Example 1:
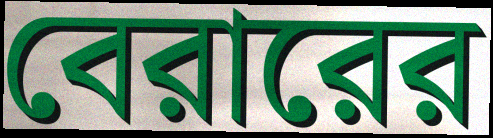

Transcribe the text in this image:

বেরারের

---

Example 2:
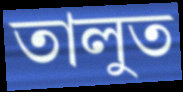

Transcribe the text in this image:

তালুত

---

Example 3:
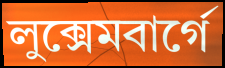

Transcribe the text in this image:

লুক্সেমবার্গে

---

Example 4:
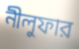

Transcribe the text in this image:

নীলুফার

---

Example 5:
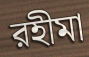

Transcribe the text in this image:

রহীমা